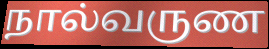
நால்வருண